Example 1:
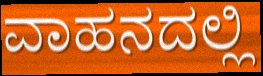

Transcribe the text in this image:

ವಾಹನದಲ್ಲಿ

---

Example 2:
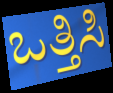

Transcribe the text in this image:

ಒತ್ತಿಸಿ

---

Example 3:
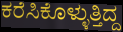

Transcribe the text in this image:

ಕರೆಸಿಕೊಳ್ಳುತ್ತಿದ್ದ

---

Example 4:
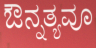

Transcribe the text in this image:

ಔನ್ನತ್ಯವೂ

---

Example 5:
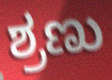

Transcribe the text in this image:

ಶ್ರಣು